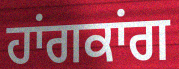
ਹਾਂਗਕਾਂਗ